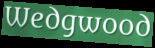
Wedgwood